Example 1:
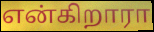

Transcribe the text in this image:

என்கிறாரா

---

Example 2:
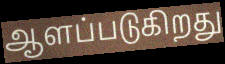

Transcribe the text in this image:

ஆளப்படுகிறது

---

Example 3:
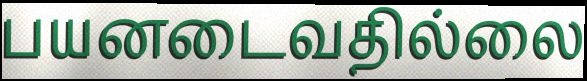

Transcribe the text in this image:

பயனடைவதில்லை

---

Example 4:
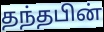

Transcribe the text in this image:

தந்தபின்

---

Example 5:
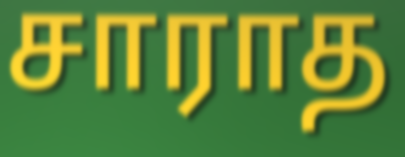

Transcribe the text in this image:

சாராத